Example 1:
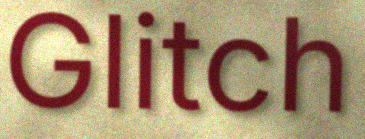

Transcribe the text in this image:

Glitch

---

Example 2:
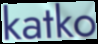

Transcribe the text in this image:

katko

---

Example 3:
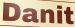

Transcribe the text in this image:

Danit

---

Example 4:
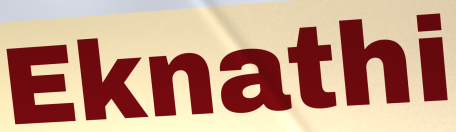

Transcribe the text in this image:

Eknathi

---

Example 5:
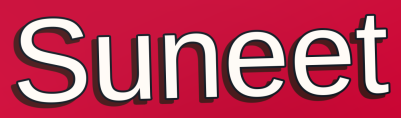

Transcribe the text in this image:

Suneet